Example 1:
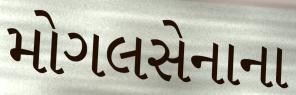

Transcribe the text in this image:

મોગલસેનાના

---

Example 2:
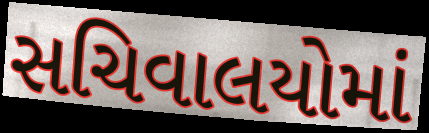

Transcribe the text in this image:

સચિવાલયોમાં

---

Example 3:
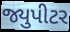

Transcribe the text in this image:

જ્યુપીટર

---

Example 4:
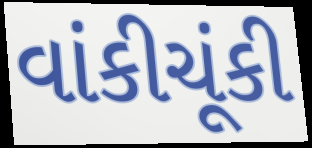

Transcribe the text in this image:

વાંકીચૂંકી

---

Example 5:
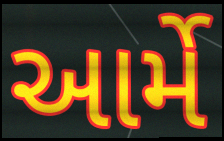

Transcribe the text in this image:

આર્મે